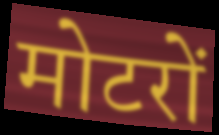
मोटरों